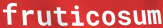
fruticosum